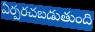
ఏర్పరచబడుతుంది